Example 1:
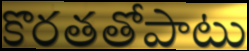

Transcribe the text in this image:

కొరతతోపాటు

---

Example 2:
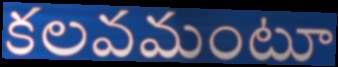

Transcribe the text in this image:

కలవమంటూ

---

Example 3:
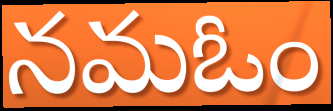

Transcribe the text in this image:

నమఓం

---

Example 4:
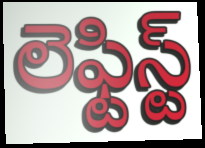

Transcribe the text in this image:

లెఫ్టిస్ట్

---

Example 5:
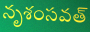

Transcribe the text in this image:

నృశంసవత్